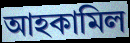
আহকামিল